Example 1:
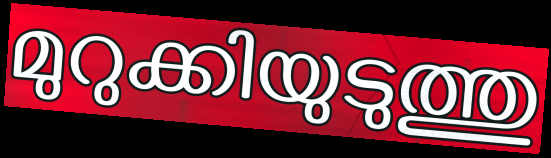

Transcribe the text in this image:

മുറുക്കിയുടുത്തു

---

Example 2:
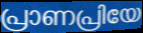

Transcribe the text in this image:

പ്രാണപ്രിയേ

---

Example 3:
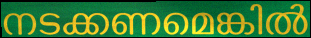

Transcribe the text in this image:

നടക്കണമെങ്കിൽ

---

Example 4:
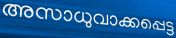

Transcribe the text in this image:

അസാധുവാക്കപ്പെട്ട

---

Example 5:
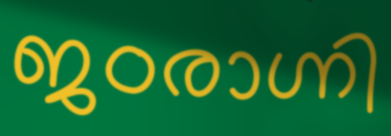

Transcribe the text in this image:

ജഠരാഗ്നി